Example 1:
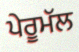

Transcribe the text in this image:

ਪੇਰੂਮੱਲ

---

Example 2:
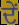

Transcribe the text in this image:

ਦੇਂ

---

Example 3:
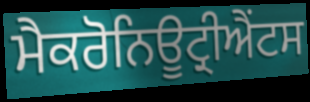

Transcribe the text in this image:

ਮੈਕਰੋਨਿਊਟ੍ਰੀਐਂਟਸ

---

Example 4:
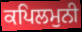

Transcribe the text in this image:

ਕਪਿਲਮੁਨੀ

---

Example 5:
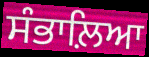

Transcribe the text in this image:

ਸੰਭਾਲ਼ਿਆ